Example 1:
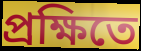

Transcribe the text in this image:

প্রক্ষিতে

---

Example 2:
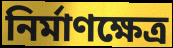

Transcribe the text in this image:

নির্মাণক্ষেত্র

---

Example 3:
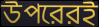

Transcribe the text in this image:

উপরেরই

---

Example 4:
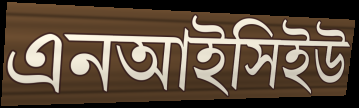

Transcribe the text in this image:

এনআইসিইউ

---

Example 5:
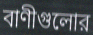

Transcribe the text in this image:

বাণীগুলোর